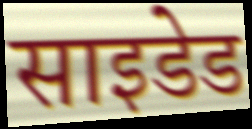
साइडेड